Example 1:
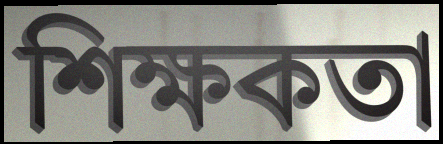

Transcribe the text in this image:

শিক্ষকতা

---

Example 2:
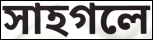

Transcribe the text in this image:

সাহগলে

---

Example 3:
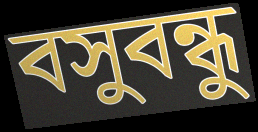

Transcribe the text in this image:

বসুবন্ধু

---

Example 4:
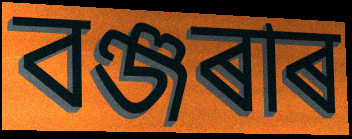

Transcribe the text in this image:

বঞ্জৰাৰ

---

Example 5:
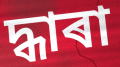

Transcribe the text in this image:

দ্ধাৰা